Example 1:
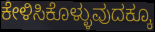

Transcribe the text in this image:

ಕೇಳಿಸಿಕೊಳ್ಳುವುದಕ್ಕೂ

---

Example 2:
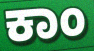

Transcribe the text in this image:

ಕಾಂ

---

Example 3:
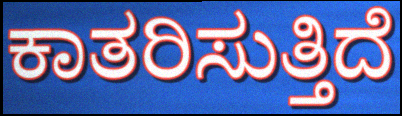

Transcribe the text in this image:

ಕಾತರಿಸುತ್ತಿದೆ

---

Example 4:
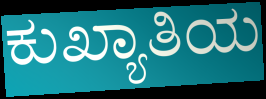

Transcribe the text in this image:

ಕುಖ್ಯಾತಿಯ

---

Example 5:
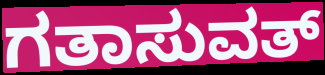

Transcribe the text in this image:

ಗತಾಸುವತ್